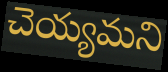
చెయ్యమని